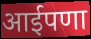
आईपणा